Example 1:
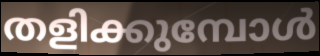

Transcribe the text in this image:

തളിക്കുമ്പോൾ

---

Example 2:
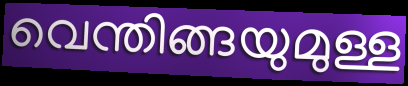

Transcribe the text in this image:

വെന്തിങ്ങയുമുള്ള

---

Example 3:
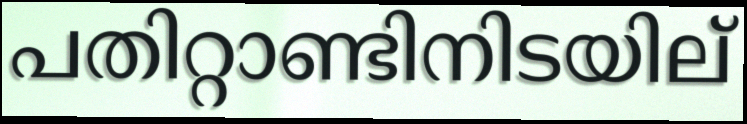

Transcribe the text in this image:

പതിറ്റാണ്ടിനിടയില്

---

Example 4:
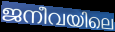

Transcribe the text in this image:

ജനീവയിലെ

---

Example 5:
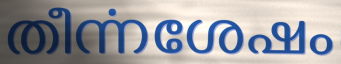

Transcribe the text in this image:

തീൎന്നശേഷം